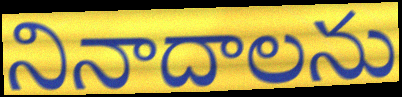
నినాదాలను